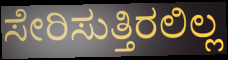
ಸೇರಿಸುತ್ತಿರಲಿಲ್ಲ